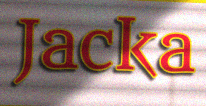
Jacka